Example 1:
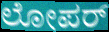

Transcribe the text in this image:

ಲೋಪರ್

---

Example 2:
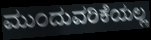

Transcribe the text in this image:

ಮುಂದುವರಿಕೆಯಲ್ಲ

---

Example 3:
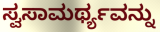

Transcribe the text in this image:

ಸ್ವಸಾಮರ್ಥ್ಯವನ್ನು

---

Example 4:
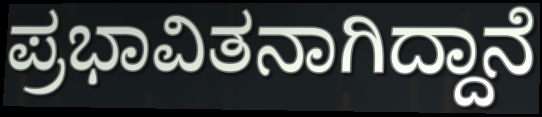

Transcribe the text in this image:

ಪ್ರಭಾವಿತನಾಗಿದ್ದಾನೆ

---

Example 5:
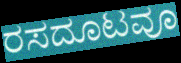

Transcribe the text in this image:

ರಸದೂಟವೂ